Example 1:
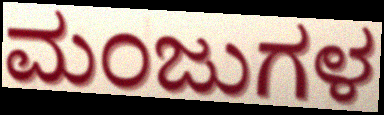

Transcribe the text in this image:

ಮಂಜುಗಳ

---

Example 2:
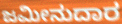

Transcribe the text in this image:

ಜಮೀನುದಾರ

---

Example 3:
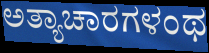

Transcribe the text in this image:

ಅತ್ಯಾಚಾರಗಳಂಥ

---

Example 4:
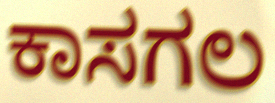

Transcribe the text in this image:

ಕಾಸಗಲ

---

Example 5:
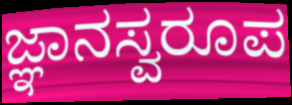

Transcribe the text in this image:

ಜ್ಞಾನಸ್ವರೂಪ